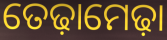
ତେଢ଼ାମେଢ଼ା